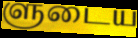
ளுடைய